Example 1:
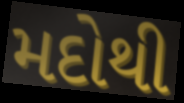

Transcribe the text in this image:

મદોથી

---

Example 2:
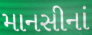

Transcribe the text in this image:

માનસીનાં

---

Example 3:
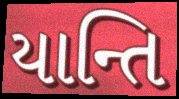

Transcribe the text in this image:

યાન્તિ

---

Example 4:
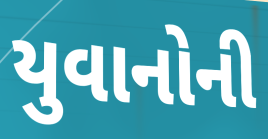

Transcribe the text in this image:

યુવાનોની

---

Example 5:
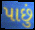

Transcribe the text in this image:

પાછું